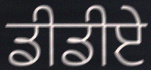
ਡੀਡੀਏ